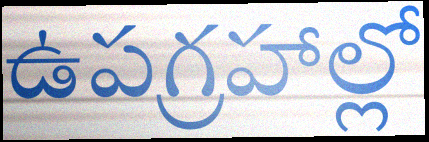
ఉపగ్రహాల్లో